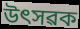
উৎসৱক